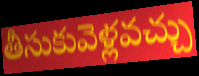
తీసుకువెళ్లవచ్చు